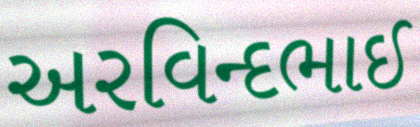
અરવિન્દભાઈ